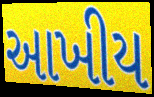
આખીય